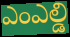
ఎంఎల్డి